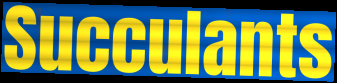
Succulants